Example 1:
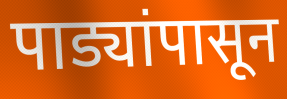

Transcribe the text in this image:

पाड्यांपासून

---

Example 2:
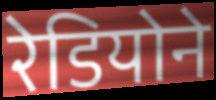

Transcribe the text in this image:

रेडियोने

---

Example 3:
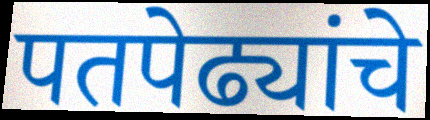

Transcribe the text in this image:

पतपेढ्यांचे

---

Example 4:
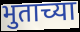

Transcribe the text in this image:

भुताच्या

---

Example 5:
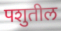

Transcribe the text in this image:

पशुतील